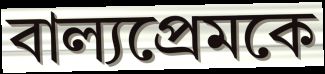
বাল্যপ্রেমকে